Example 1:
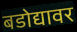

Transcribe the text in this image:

बडोद्यावर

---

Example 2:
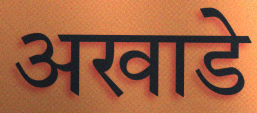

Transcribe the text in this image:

अखाडे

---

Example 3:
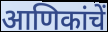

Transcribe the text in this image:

आणिकांचें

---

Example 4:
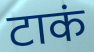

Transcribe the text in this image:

टाकं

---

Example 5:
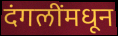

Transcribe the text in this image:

दंगलींमधून